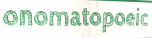
onomatopoeic